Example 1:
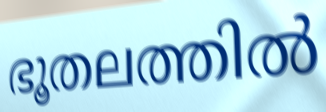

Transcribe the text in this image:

ഭൂതലത്തിൽ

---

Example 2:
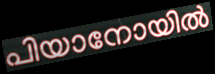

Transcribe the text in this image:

പിയാനോയിൽ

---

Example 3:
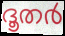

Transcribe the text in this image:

ദൂതർ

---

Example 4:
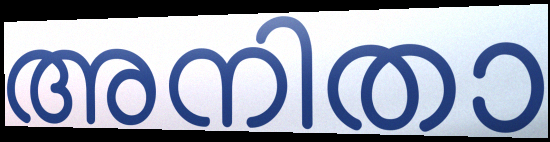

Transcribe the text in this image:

അനിതാ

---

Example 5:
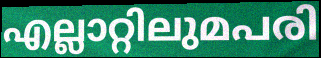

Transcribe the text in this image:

എല്ലാറ്റിലുമപരി